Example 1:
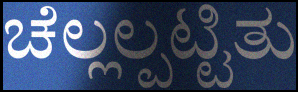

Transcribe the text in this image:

ಚೆಲ್ಲಲ್ಪಟ್ಟಿತು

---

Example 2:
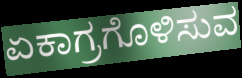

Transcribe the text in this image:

ಏಕಾಗ್ರಗೊಳಿಸುವ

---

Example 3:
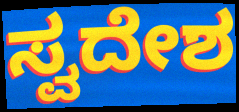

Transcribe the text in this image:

ಸ್ವದೇಶ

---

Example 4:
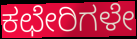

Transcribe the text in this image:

ಕಛೇರಿಗಳೇ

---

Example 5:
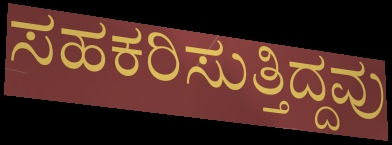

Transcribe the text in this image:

ಸಹಕರಿಸುತ್ತಿದ್ದವು